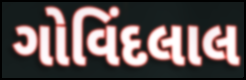
ગોવિંદલાલ